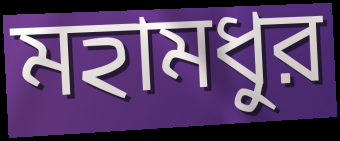
মহামধুর